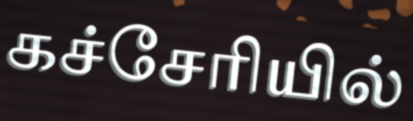
கச்சேரியில்